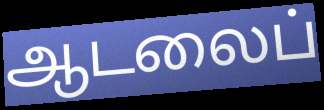
ஆடலைப்